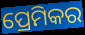
ପ୍ରେମିକର